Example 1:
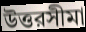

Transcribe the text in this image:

উত্তরসীমা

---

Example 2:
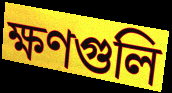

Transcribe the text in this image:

ক্ষণগুলি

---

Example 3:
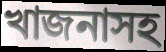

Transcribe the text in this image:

খাজনাসহ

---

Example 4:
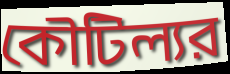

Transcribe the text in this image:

কৌটিল্যর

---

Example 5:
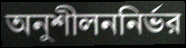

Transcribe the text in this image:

অনুশীলননির্ভর